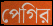
পেগির